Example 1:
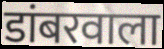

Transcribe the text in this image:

डांबरवाला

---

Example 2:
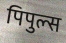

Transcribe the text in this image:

पिपुल्स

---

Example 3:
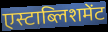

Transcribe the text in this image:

एस्टाब्लिशमेंट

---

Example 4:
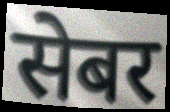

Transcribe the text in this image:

सेबर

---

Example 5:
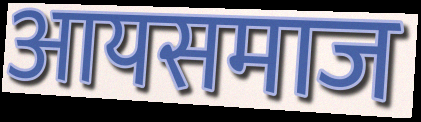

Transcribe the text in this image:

आयसमाज